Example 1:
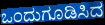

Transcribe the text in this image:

ಒಂದುಗೂಡಿಸಿದ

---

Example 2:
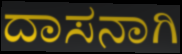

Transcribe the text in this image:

ದಾಸನಾಗಿ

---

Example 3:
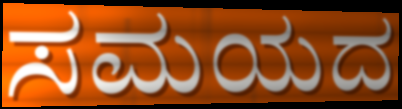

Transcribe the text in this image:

ಸಮಯದ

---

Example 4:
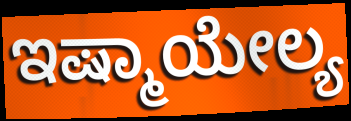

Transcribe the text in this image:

ಇಷ್ಮಾಯೇಲ್ಯ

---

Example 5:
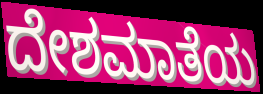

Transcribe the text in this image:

ದೇಶಮಾತೆಯ